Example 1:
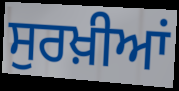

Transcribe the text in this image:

ਸੁਰਖ਼ੀਆਂ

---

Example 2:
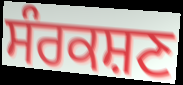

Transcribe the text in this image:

ਸੰਰਕਸ਼ਣ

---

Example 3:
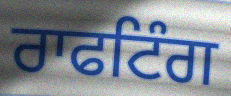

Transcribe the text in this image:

ਰਾਫਟਿੰਗ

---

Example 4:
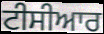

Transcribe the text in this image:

ਟੀਸੀਆਰ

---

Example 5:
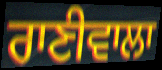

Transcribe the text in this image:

ਰਾਣੀਵਾਲਾ